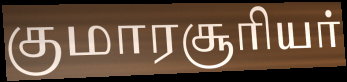
குமாரசூரியர்